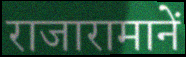
राजारामानें